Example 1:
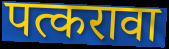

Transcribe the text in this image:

पत्करावा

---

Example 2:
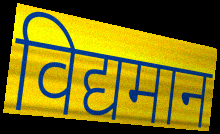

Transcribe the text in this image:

विद्यमान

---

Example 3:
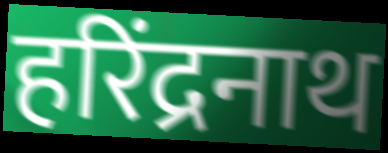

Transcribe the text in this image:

हरिंद्रनाथ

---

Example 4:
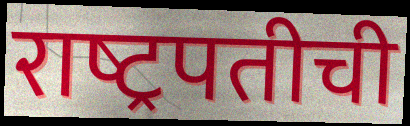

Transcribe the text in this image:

राष्ट्रपतीची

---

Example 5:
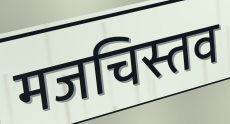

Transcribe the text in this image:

मजचिस्तव